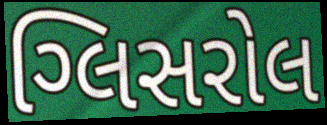
ગ્લિસરોલ